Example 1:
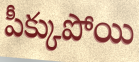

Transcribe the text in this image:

పీక్కుపోయి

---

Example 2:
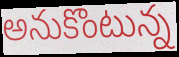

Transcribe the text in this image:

అనుకొంటున్న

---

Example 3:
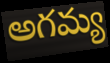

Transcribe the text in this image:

అగమ్య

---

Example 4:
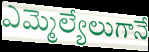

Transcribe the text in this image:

ఎమ్మెల్యేలుగానే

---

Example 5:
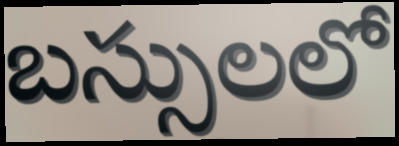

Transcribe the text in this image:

బస్సులలో